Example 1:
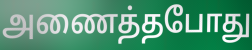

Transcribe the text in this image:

அணைத்தபோது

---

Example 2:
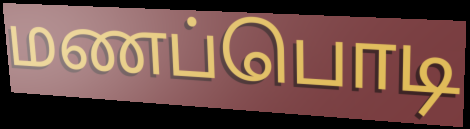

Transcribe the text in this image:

மணப்பொடி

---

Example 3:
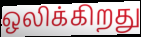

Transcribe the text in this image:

ஒலிக்கிறது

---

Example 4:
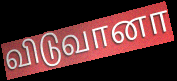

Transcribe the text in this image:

விடுவானா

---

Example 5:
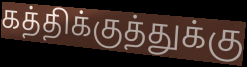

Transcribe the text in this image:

கத்திக்குத்துக்கு